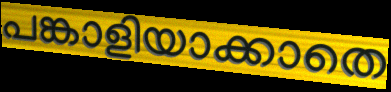
പങ്കാളിയാക്കാതെ